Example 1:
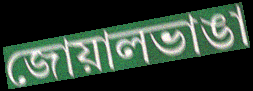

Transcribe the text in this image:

জোয়ালভাঙা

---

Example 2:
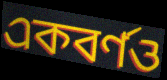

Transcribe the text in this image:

একবর্ণও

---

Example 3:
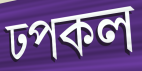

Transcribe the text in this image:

ঢপকল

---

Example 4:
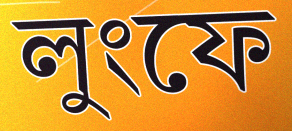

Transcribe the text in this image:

লুংফে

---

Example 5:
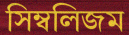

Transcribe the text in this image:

সিম্বলিজম